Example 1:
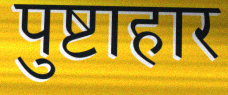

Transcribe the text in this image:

पुष्टाहार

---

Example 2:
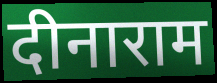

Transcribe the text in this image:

दीनाराम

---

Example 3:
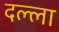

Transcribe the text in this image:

दल्ला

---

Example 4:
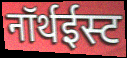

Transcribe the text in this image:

नॉर्थईस्ट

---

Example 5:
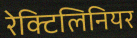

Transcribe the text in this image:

रेक्टिलिनियर